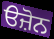
ੳਜ਼ੋਨ